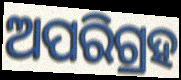
ଅପରିଗ୍ରହ